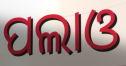
ପଲାଓ